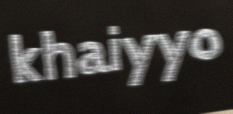
khaiyyo